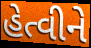
હેત્વીને